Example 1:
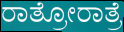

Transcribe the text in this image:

ರಾತ್ರೋರಾತ್ರೆ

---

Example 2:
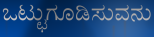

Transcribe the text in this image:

ಒಟ್ಟುಗೂಡಿಸುವನು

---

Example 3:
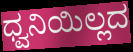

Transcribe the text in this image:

ಧ್ವನಿಯಿಲ್ಲದ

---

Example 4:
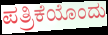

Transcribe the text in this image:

ಪತ್ರಿಕೆಯೊಂದು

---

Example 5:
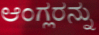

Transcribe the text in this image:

ಆಂಗ್ಲರನ್ನು